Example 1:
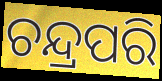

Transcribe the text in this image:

ଚନ୍ଦ୍ରପରି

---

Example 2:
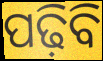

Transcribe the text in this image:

ପଢ଼ିବି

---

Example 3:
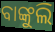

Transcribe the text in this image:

ବାଙ୍କୁଲି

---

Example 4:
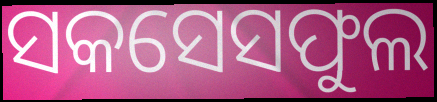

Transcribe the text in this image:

ସକସେସଫୁଲ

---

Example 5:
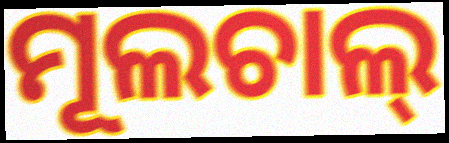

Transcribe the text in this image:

ମୂଲଚାଲ୍